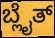
ಬ್ಲೈತ್